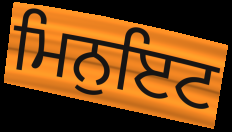
ਮਿਨੁਇਟ